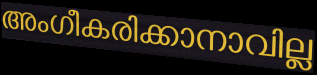
അംഗീകരിക്കാനാവില്ല